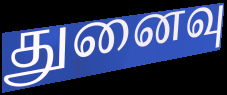
துனைவு